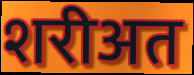
शरीअत